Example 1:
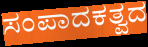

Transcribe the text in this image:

ಸಂಪಾದಕತ್ವದ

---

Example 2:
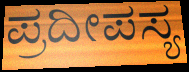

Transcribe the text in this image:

ಪ್ರದೀಪಸ್ಯ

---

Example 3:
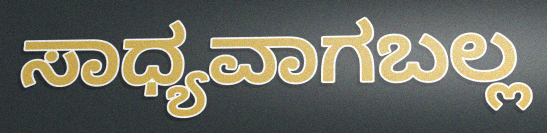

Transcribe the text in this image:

ಸಾಧ್ಯವಾಗಬಲ್ಲ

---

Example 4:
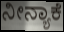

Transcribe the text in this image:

ನೀನ್ಯಾಕೆ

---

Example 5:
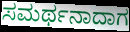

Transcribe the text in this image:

ಸಮರ್ಥನಾದಾಗ